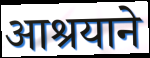
आश्रयाने